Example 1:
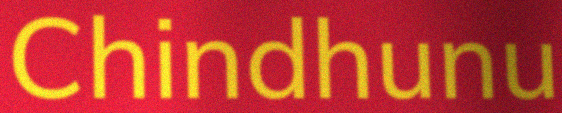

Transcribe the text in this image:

Chindhunu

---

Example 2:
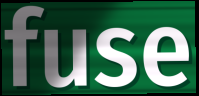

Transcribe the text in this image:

fuse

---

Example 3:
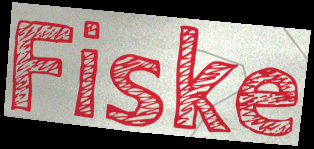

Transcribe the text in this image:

Fiske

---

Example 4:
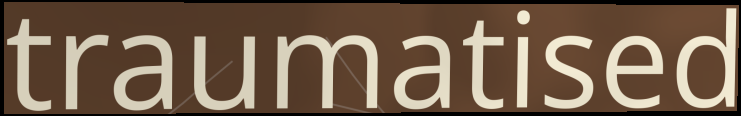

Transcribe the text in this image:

traumatised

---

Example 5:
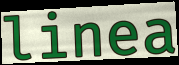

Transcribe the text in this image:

linea